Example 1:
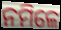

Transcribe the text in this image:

ନମିଳେ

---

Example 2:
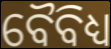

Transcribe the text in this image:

ବୈବିଧ୍ୟ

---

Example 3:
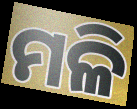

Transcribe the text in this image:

ମଳି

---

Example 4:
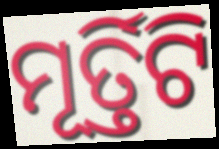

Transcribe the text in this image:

ମୂର୍ତ୍ତିଟି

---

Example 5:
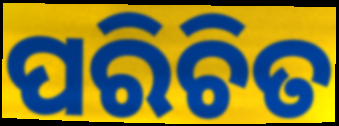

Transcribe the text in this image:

ପରିଚିତ